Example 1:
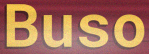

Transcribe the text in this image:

Buso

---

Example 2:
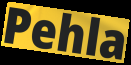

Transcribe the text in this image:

Pehla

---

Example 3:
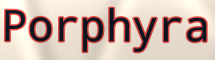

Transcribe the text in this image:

Porphyra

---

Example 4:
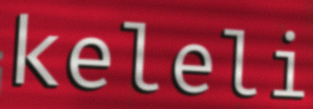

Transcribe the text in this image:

keleli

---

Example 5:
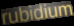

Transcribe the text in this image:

rubidium